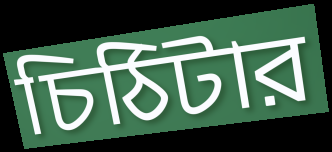
চিঠিটার